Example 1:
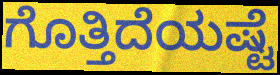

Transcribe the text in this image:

ಗೊತ್ತಿದೆಯಷ್ಟೆ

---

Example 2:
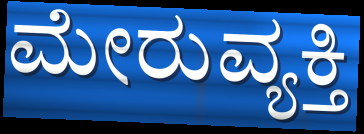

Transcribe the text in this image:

ಮೇರುವ್ಯಕ್ತಿ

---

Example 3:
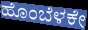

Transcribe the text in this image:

ಹೊಂಬೆಳಕೇ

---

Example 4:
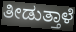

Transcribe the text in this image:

ತೀಡುತ್ತಾಳೆ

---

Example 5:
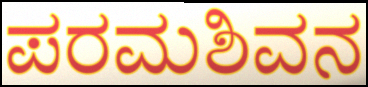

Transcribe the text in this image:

ಪರಮಶಿವನ